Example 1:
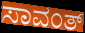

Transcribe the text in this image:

ಸಾವಂತ್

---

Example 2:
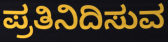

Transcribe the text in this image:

ಪ್ರತಿನಿದಿಸುವ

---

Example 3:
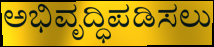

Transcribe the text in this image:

ಅಭಿವೃದ್ಧಿಪಡಿಸಲು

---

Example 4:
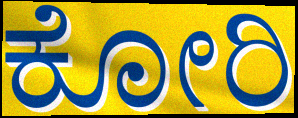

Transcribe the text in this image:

ಕೋರಿ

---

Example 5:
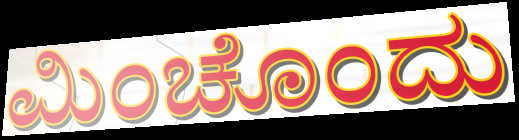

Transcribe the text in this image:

ಮಿಂಚೊಂದು